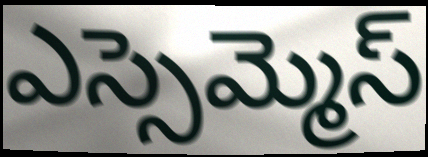
ఎస్సెమ్మెస్